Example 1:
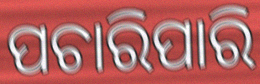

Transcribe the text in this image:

ପଚାରିପାରି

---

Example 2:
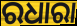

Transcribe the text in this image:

ରଧାରା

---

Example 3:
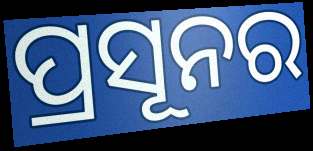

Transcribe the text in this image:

ପ୍ରସୂନର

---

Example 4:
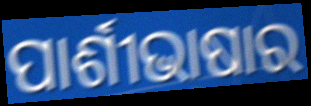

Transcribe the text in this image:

ପାର୍ଶୀଭାଷାର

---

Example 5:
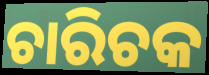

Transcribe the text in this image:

ଚାରିଚକ